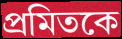
প্রমিতকে